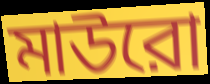
মাউরো